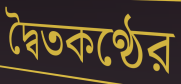
দ্বৈতকণ্ঠের